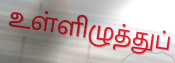
உள்ளிழுத்துப்